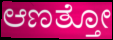
ಆಣತ್ತೋ